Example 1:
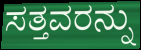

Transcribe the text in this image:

ಸತ್ತವರನ್ನು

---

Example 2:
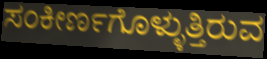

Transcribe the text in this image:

ಸಂಕೀರ್ಣಗೊಳ್ಳುತ್ತಿರುವ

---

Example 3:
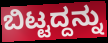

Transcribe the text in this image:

ಬಿಟ್ಟದ್ದನ್ನು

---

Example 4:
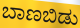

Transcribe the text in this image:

ಬಾಣಬಿಡು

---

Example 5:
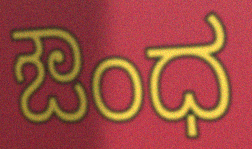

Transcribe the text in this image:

ಔಂಧ